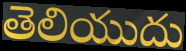
తెలియుదు